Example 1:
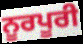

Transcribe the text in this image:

ਨੂਰਪੂਰੀ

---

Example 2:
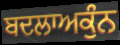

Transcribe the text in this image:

ਬਦਲਾਅਕੁੰਨ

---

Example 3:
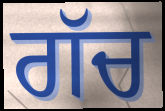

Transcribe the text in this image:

ਗੱਚ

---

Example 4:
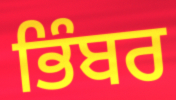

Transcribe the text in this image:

ਭਿੰਬਰ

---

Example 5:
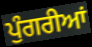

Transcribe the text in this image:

ਪੁੰਗਰੀਆਂ